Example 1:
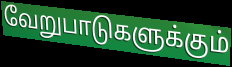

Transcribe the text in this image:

வேறுபாடுகளுக்கும்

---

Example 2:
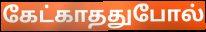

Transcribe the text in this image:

கேட்காததுபோல்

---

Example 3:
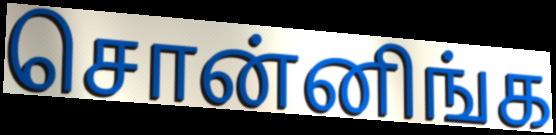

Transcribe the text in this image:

சொன்னிங்க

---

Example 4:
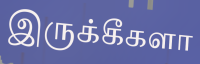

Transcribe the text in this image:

இருக்கீகளா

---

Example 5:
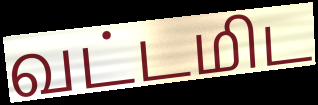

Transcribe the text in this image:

வட்டமிட